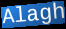
Alagh